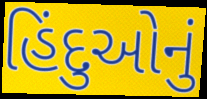
હિંદુઓનું